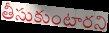
తీసుకుంటారని